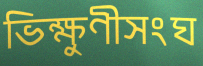
ভিক্ষুণীসংঘ